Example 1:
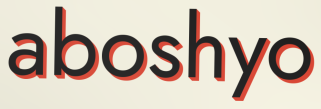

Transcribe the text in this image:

aboshyo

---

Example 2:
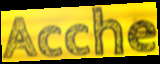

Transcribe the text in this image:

Acche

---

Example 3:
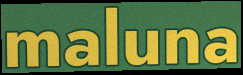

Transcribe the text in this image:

maluna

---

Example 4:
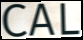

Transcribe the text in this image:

CAL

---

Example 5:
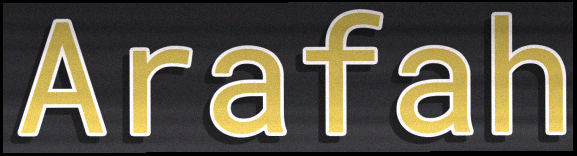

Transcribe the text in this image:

Arafah